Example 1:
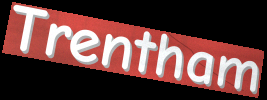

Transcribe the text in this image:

Trentham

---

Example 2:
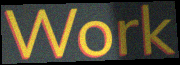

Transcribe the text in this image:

Work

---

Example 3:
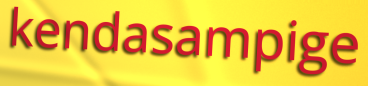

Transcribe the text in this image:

kendasampige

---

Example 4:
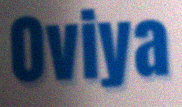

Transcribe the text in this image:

Oviya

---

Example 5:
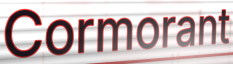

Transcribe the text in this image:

Cormorant